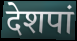
देशपां